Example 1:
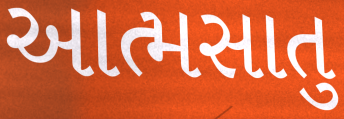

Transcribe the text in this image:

આત્મસાતુ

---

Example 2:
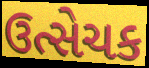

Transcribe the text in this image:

ઉત્સેચક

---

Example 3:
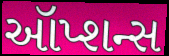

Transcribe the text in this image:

ઑપ્શન્સ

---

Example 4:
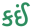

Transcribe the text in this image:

કઈં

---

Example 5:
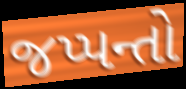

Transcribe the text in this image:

જપ્પન્તો